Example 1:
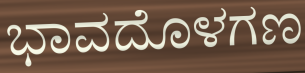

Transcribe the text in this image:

ಭಾವದೊಳಗಣ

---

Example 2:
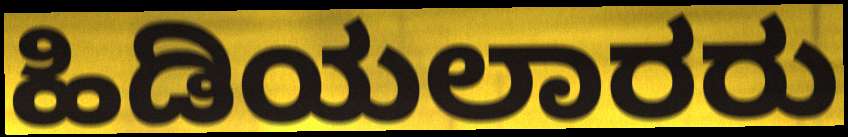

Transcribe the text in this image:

ಹಿಡಿಯಲಾರರು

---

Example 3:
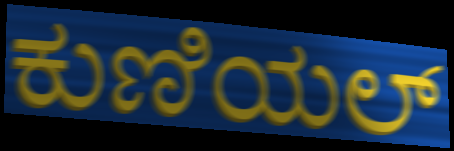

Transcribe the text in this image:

ಕುಣಿಯಲ್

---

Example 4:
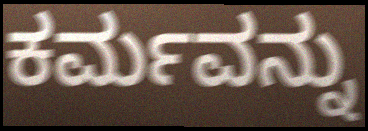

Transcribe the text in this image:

ಕರ್ಮವನ್ನು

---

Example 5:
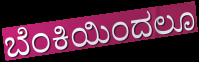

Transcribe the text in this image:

ಬೆಂಕಿಯಿಂದಲೂ